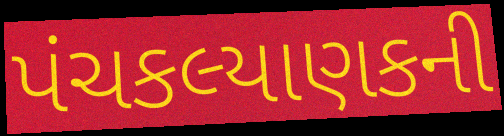
પંચકલ્યાણકની